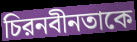
চিরনবীনতাকে